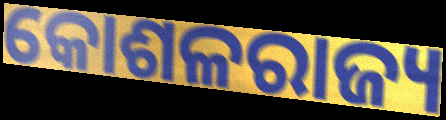
କୋଶଳରାଜ୍ୟ